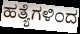
ಹತ್ಯೆಗಳಿಂದ